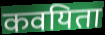
कवयिता